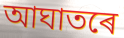
আঘাতৰে